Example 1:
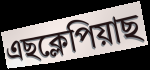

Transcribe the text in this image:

এছক্লেপিয়াছ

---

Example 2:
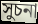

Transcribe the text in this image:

সুচনা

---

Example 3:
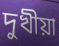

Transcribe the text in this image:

দুখীয়া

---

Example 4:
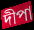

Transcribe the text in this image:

দীপা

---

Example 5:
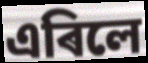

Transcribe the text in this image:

এৰিলে